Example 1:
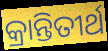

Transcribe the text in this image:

କ୍ରାନ୍ତିତୀର୍ଥ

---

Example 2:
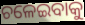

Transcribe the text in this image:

ଚଳେଇବାକୁ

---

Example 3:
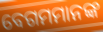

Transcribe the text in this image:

ବେଗମମାନଙ୍କ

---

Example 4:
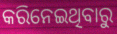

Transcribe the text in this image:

କରିନେଇଥିବାରୁ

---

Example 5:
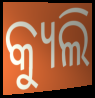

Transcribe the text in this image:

କ୍ୟୁଲି